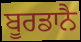
ਬੂਰਡਾਨੈ